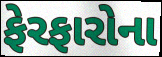
ફેરફારોના